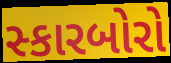
સ્કારબોરો